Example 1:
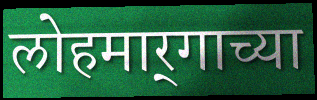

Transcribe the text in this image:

लोहमार्गाच्या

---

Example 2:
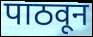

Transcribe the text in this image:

पाठवून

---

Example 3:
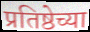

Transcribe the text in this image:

प्रतिष्ठेच्या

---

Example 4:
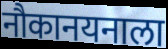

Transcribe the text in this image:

नौकानयनाला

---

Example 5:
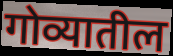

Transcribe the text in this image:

गोव्यातील